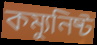
কম্যুনিষ্ট